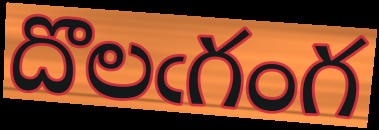
దొలఁగంగ